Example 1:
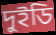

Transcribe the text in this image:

দুইডি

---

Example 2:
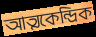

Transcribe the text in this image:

আত্মকেন্দ্রিক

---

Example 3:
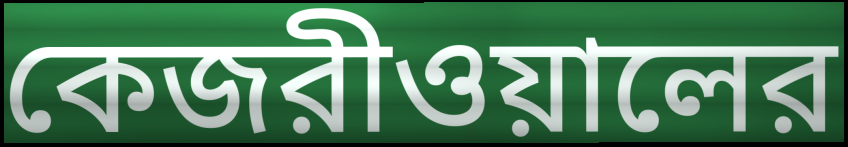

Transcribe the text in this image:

কেজরীওয়ালের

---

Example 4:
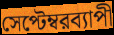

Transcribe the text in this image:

সেপ্টেম্বরব্যাপী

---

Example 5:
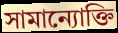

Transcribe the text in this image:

সামান্যোক্তি